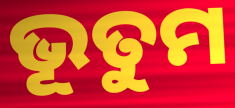
ଭୂତୁମ